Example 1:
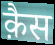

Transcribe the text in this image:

क़ैस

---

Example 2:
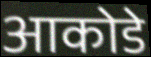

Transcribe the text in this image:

आकोडे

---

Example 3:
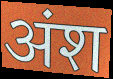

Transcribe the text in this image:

अंश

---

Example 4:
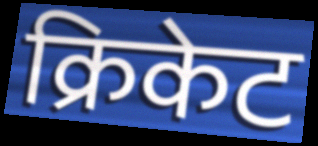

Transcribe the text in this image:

क्रिकेट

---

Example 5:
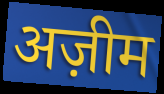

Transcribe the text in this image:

अज़ीम